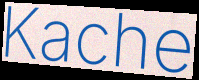
Kache